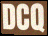
DCQ